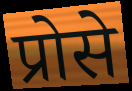
प्रोसे